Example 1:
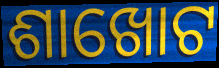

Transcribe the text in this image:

ଶାଖୋଟ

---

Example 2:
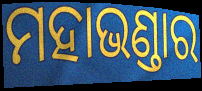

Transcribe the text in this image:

ମହାଭଣ୍ଡାର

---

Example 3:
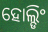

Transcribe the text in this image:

ହୋଲ୍ଡିଂ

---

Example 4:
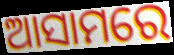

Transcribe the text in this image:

ଆସାମରେ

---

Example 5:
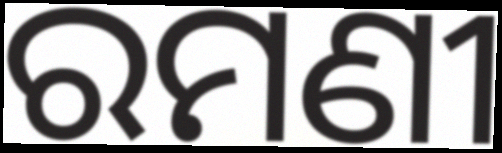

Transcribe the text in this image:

ରମଣୀ